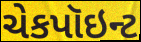
ચેકપૉઇન્ટ